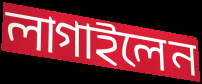
লাগাইলেন